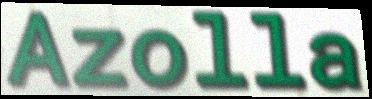
Azolla